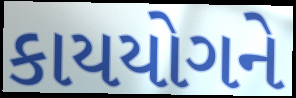
કાયયોગને